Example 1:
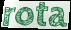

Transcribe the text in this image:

rota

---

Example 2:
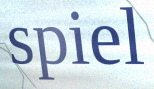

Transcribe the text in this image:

spiel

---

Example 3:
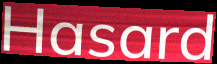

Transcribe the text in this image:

Hasard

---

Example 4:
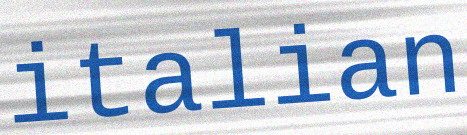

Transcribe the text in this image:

italian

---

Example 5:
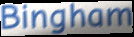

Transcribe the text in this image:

Bingham